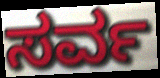
ಸರ್ವ